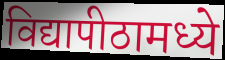
विद्यापीठामध्ये